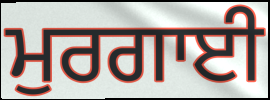
ਮੁਰਗਾਈ